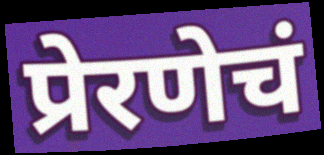
प्रेरणेचं